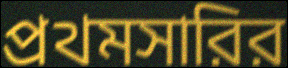
প্রথমসারির